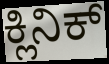
ಕ್ಲಿನಿಕ್